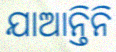
ଯାଆନ୍ତିନି